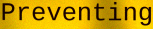
Preventing